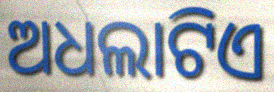
ଅଧଲାଟିଏ